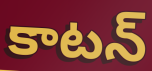
కాటన్